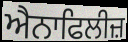
ਐਨਾਫਿਲੀਜ਼